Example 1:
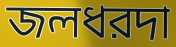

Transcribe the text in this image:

জলধরদা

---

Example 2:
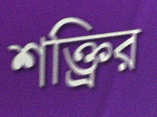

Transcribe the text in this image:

শক্ত্রির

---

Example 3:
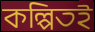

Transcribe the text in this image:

কল্পিতই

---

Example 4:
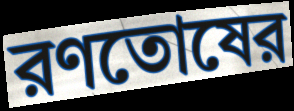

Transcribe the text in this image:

রণতোষের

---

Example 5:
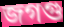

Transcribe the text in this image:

জগগু